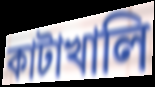
কাটাখালি